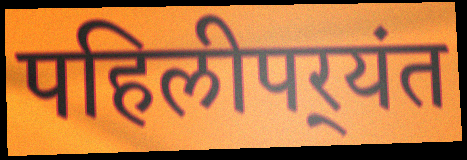
पहिलीपर्यंत